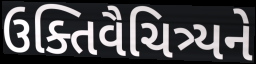
ઉક્તિવૈચિત્ર્યને